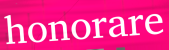
honorare